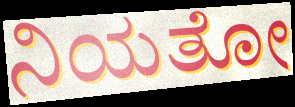
ನಿಯತೋ